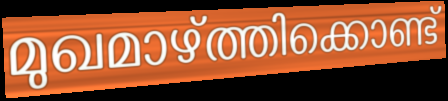
മുഖമാഴ്ത്തിക്കൊണ്ട്